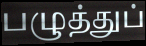
பழுத்துப்